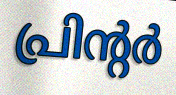
പ്രിന്റർ